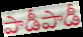
పాడీపాడీ